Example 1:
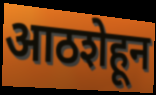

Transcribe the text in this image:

आठशेहून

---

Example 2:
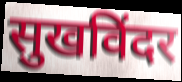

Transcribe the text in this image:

सुखविंदर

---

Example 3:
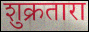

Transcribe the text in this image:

शुक्रतारा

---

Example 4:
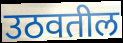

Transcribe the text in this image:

उठवतील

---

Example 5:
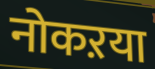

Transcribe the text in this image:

नोकऱया